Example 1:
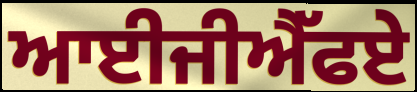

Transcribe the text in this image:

ਆਈਜੀਐੱਫਏ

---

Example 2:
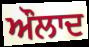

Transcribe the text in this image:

ਔਲਾਦ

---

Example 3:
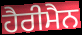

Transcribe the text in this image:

ਹੈਰੀਮੈਨ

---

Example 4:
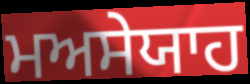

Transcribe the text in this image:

ਮਅਸੇਯਾਹ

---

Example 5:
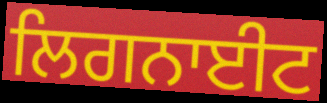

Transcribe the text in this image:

ਲਿਗਨਾਈਟ